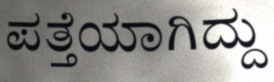
ಪತ್ತೆಯಾಗಿದ್ದು